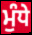
ਮੁੰਧੇ